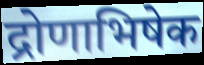
द्रोणाभिषेक